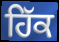
ਹਿੱਕ